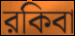
রকিবা